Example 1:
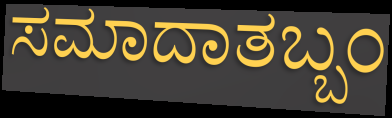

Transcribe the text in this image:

ಸಮಾದಾತಬ್ಬಂ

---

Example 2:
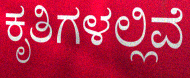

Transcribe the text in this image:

ಕೃತಿಗಳಲ್ಲಿವೆ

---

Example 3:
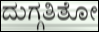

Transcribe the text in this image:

ದುಗ್ಗತಿತೋ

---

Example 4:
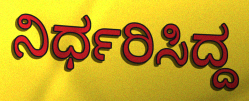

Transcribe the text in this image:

ನಿರ್ಧರಿಸಿದ್ದ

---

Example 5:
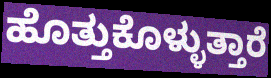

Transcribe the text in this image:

ಹೊತ್ತುಕೊಳ್ಳುತ್ತಾರೆ